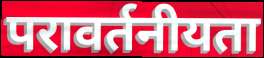
परावर्तनीयता